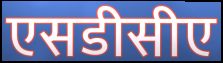
एसडीसीए